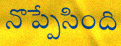
నొప్పేసింది